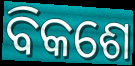
ବିକଶେ